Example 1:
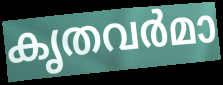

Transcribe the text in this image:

കൃതവർമാ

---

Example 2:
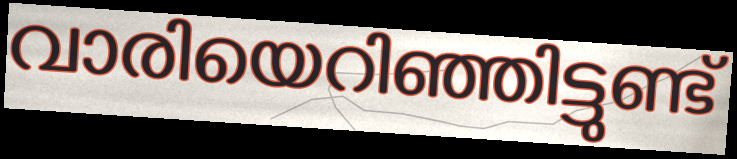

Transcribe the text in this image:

വാരിയെറിഞ്ഞിട്ടുണ്ട്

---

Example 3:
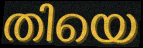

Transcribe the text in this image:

തിയെ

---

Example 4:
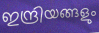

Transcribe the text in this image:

ഇന്ദ്രിയങ്ങളും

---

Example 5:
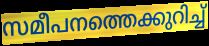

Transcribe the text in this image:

സമീപനത്തെക്കുറിച്ച്